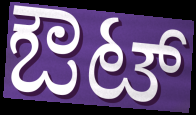
ಔಟ್